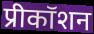
प्रीकॉशन